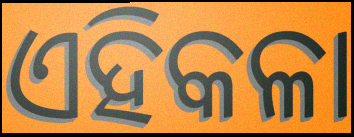
ଏହିକଳା